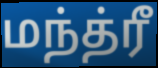
மந்த்ரீ